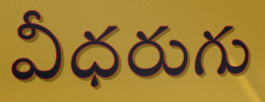
వీధరుగు